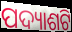
ପଦ୍ୟାଶଟି